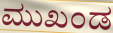
ಮುಖಂಡ